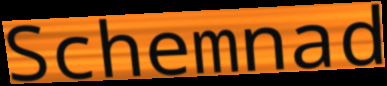
Schemnad